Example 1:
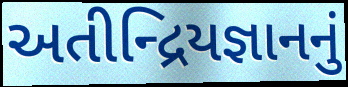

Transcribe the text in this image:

અતીન્દ્રિયજ્ઞાનનું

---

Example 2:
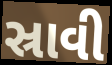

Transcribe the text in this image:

સ્રાવી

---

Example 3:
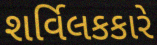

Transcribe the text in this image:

શર્વિલકકારે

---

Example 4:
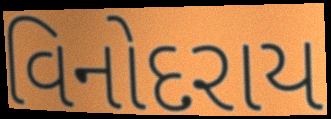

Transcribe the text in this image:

વિનોદરાય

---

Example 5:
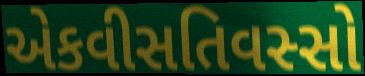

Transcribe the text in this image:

એકવીસતિવસ્સો